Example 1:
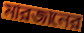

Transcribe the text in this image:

মারজানের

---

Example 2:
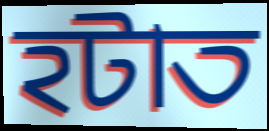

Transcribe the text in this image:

হটাত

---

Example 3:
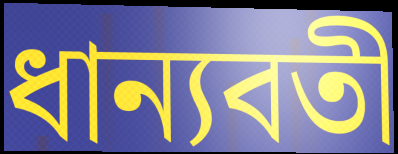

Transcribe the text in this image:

ধান্যবতী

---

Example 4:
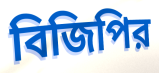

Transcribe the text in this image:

বিজিপির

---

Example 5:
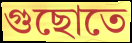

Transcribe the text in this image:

গুছোতে